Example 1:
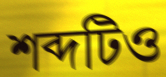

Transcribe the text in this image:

শব্দটিও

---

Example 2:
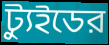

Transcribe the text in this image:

ট্যুইডের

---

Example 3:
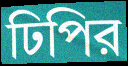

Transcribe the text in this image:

ঢিপির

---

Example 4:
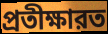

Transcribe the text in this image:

প্রতীক্ষারত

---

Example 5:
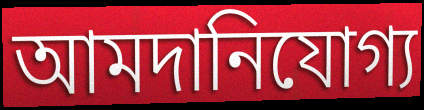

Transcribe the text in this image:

আমদানিযোগ্য